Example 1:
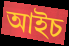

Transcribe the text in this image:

আইচ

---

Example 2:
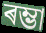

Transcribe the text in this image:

ৰম্ভা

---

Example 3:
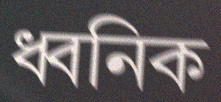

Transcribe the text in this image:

ধ্বনিক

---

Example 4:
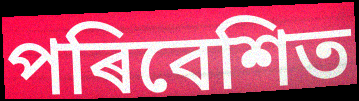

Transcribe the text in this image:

পৰিবেশিত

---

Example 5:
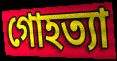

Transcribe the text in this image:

গোহত্যা